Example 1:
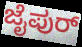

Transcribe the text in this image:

ಜೈಪುರ್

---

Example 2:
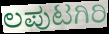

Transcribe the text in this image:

ಲಪುಟಗಿರಿ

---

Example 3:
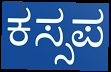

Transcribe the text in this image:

ಕಸ್ಸಪ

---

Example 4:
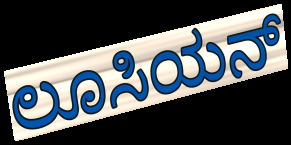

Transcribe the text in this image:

ಲೂಸಿಯನ್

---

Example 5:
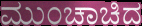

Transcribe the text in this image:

ಮುಂಚಾಚಿದ